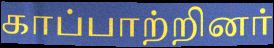
காப்பாற்றினர்